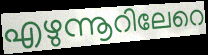
എഴുന്നൂറിലേറെ